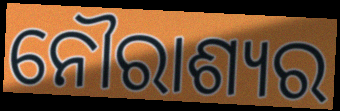
ନୌରାଶ୍ୟର